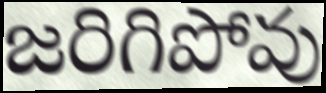
జరిగిపోవు